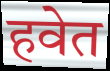
हवेत